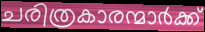
ചരിത്രകാരന്മാർക്ക്